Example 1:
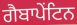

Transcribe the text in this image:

ਗੈਬਾਪੇਂਟਿਨ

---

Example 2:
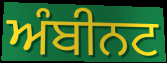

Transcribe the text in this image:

ਅੰਬੀਨਟ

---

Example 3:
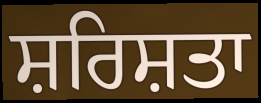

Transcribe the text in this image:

ਸ਼ਰਿਸ਼ਤਾ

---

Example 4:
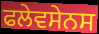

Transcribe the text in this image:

ਫਲੇਵਸੇਨਸ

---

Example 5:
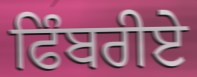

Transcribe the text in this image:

ਫਿੰਬਰੀਏ